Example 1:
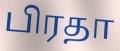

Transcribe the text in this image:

பிரதா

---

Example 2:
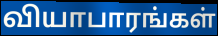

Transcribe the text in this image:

வியாபாரங்கள்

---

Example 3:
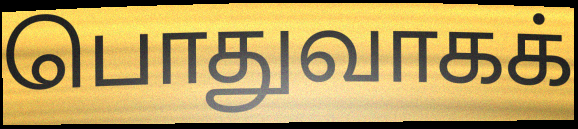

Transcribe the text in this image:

பொதுவாகக்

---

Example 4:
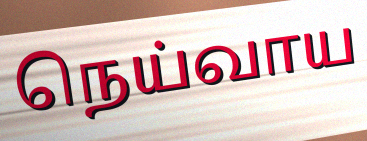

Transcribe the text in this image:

நெய்வாய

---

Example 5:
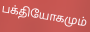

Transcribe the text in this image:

பக்தியோகமும்